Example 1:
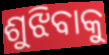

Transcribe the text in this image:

ଶୁଝିବାକୁ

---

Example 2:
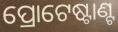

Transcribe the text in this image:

ପ୍ରୋଟେଷ୍ଟାଣ୍ଟ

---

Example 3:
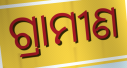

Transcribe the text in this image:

ଗ୍ରାମୀଣ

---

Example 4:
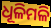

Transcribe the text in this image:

ଧୂଳିମଳି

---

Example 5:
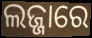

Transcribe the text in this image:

ଲଜ୍ଜାରେ